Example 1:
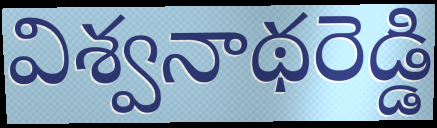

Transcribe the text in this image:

విశ్వనాథరెడ్డి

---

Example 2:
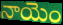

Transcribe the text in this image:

నాయెం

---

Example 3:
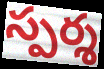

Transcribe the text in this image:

స్పర్శ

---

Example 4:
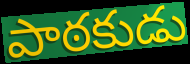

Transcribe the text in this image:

పాఠకుడు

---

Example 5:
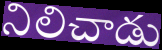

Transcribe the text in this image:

నిలిచాడు